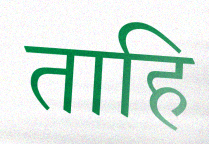
ताहि